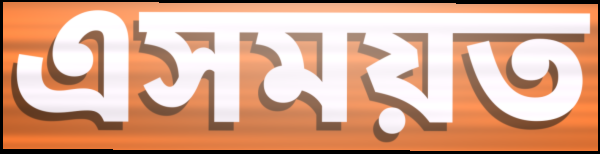
এসময়ত